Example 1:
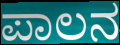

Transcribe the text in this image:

ಪಾಲನ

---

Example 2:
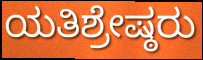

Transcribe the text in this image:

ಯತಿಶ್ರೇಷ್ಠರು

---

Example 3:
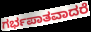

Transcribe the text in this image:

ಗರ್ಭಪಾತವಾದರೆ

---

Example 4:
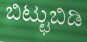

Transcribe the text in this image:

ಬಿಟ್ಟುಬಿಡಿ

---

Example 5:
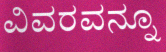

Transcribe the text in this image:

ವಿವರವನ್ನೂ